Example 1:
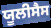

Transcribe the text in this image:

ਯੂਲੀਸੈਸ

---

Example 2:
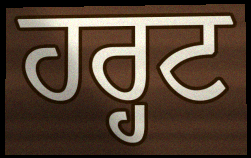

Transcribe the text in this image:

ਹਰ੍ਹਟ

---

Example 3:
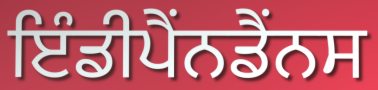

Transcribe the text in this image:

ਇੰਡੀਪੈਂਨਡੈਂਨਸ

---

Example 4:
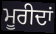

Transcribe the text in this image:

ਮੂਰੀਦਾਂ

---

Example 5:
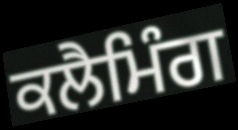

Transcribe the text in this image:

ਕਲੈਮਿੰਗ